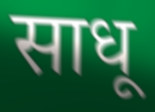
साधू